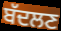
ਬੱਦਲਣ